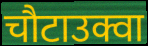
चौटाउक्वा